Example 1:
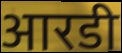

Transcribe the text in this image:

आरडी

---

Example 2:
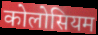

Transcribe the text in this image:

कोलोसियम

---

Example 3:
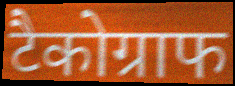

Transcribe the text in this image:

टैकोग्राफ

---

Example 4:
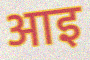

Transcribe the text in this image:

आइ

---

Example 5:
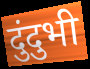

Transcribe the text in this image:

दुंदुभी